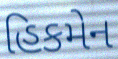
હિકમેન